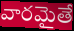
వారమైతే